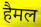
हैमल